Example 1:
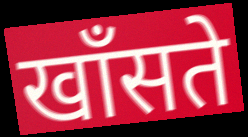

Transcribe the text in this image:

खाँसते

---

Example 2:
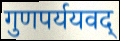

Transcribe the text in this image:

गुणपर्ययवद्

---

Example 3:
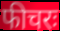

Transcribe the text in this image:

फीचरः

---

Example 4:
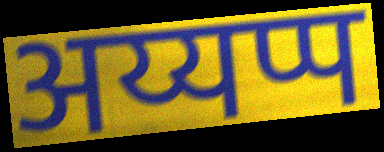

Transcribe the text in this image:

अय्यप्प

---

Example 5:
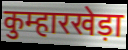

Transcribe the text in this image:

कुम्हारखेड़ा